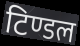
टिण्डल